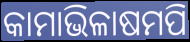
କାମାଭିଳାଷମପି